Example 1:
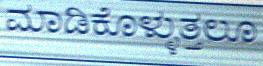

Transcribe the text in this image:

ಮಾಡಿಕೊಳ್ಳುತ್ತಲೂ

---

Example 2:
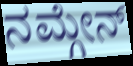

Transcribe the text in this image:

ನಮ್ಗೇನ್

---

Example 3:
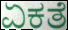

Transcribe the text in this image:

ಏಕತೆ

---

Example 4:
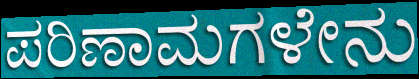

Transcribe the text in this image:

ಪರಿಣಾಮಗಳೇನು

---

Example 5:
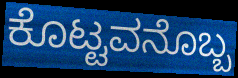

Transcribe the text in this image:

ಕೊಟ್ಟವನೊಬ್ಬ